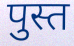
पुस्त